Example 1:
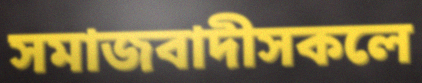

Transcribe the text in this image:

সমাজবাদীসকলে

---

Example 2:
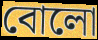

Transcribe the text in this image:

বোলো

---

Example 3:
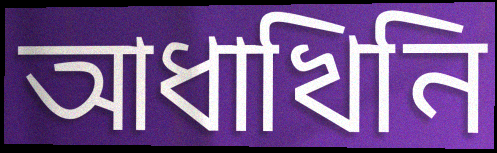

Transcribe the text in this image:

আধাখিনি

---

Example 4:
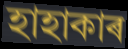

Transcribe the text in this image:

হাহাকাৰ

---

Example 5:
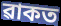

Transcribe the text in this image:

ৱাকত